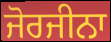
ਜੋਰਜੀਨਾ